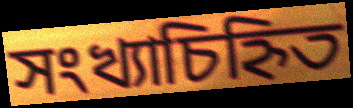
সংখ্যাচিহ্নিত